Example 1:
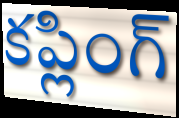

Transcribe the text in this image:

కప్లింగ్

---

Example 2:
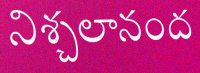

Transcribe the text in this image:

నిశ్చలానంద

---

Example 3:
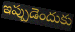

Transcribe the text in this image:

ఇప్పుడెందుకు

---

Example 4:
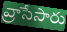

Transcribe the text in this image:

వ్రాసేసారు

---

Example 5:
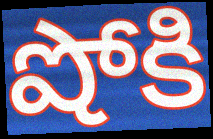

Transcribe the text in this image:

షోకి